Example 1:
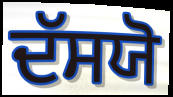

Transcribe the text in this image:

ਦੱਸਯੋ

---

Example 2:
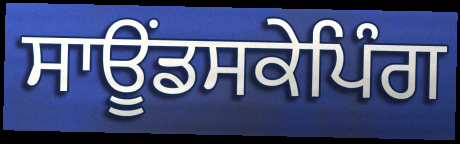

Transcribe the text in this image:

ਸਾਊਂਡਸਕੇਪਿੰਗ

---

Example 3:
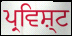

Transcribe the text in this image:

ਪ੍ਰਵਿਸ਼੍ਟ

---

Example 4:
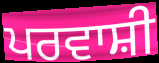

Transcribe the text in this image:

ਪਰਵਾਸ਼ੀ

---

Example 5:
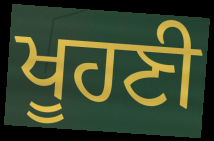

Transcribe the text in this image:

ਖੂਹਣੀ